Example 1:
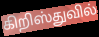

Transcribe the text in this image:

கிறிஸ்துவில்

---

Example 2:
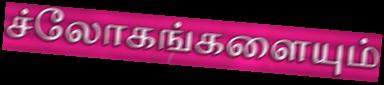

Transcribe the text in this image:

ச்லோகங்களையும்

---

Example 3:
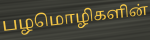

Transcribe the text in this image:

பழமொழிகளின்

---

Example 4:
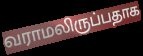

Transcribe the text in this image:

வராமலிருப்பதாக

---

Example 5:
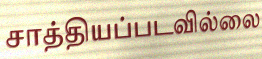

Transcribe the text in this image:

சாத்தியப்படவில்லை